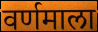
वर्णमाला